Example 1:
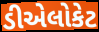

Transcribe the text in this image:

ડીએલોકેટ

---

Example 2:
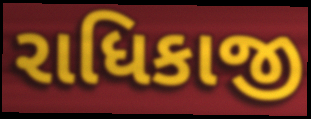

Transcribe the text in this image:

રાધિકાજી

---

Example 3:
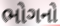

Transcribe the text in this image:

ભોગનો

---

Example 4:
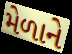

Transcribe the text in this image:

મેળાને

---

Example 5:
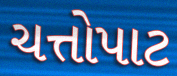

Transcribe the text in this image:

ચત્તોપાટ